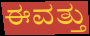
ಈವತ್ತು